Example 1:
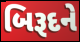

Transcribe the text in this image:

બિરૂદને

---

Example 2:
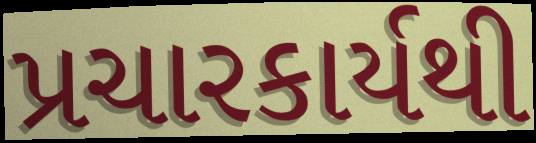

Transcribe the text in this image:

પ્રચારકાર્યથી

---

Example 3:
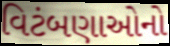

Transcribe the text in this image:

વિટંબણાઓનો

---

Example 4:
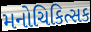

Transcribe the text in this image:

મનોચિકિત્સક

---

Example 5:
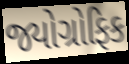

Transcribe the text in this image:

જ્યોગ્રોફિક